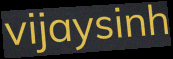
vijaysinh